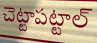
చెట్టాపట్టాల్